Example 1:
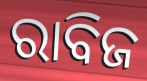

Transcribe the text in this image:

ରାବିଜ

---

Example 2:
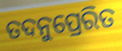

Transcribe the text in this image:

ତଦନୁପ୍ରେରିତ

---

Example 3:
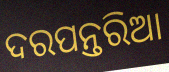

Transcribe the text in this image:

ଦରପନ୍ତରିଆ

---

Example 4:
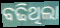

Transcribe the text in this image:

ବଢିଥିଲା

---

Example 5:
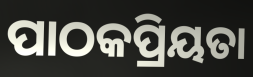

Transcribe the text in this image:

ପାଠକପ୍ରିୟତା